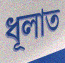
ধূলাত